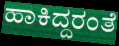
ಹಾಕಿದ್ದರಂತೆ